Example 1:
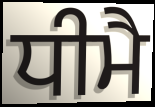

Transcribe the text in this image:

ਧੀਮੈ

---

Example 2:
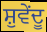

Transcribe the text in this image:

ਸ਼ੁਵੇਂਦੂ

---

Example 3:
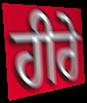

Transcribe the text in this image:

ਹੀਰੇ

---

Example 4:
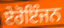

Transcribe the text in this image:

ਏਰੋਇੰਜਨ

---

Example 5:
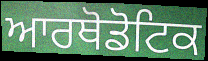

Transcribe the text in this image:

ਆਰਥੋਡੋਟਿਕ